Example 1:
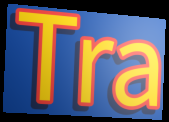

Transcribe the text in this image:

Tra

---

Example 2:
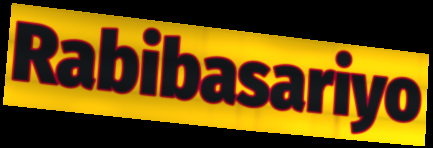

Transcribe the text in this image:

Rabibasariyo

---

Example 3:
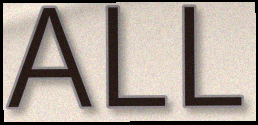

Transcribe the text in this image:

ALL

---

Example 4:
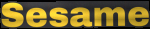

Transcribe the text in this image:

Sesame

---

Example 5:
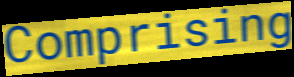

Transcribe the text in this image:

Comprising